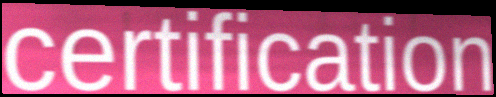
certification